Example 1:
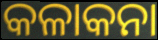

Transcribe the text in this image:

କଳାକନା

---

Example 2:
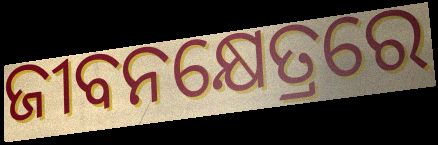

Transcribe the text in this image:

ଜୀବନକ୍ଷେତ୍ରରେ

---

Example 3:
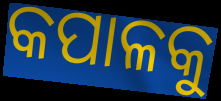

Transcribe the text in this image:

କପାଳକୁ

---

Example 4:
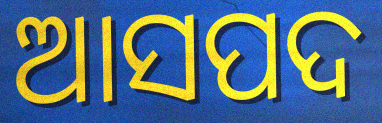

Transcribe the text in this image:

ଆସପଦ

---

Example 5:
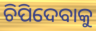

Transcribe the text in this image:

ଚିପିଦେବାକୁ